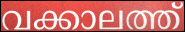
വക്കാലത്ത്